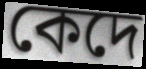
কেদে